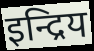
इन्द्रिय